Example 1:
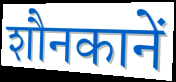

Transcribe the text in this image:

शौनकानें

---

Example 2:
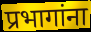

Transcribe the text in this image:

प्रभागांना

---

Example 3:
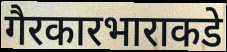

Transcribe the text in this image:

गैरकारभाराकडे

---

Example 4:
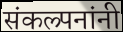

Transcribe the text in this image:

संकल्पनांनी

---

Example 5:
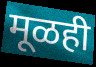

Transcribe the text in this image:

मूळही